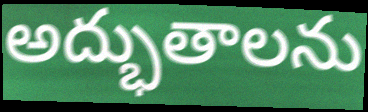
అద్భుతాలను